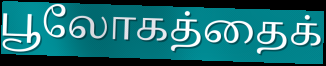
பூலோகத்தைக்